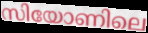
സിയോണിലെ